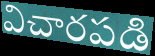
విచారపడి